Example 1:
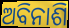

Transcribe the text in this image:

ଅବିନାଶି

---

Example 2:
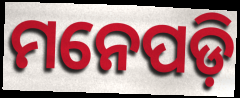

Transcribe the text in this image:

ମନେପଡ଼ି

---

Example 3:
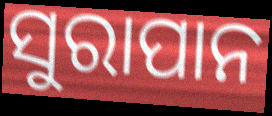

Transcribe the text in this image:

ସୁରାପାନ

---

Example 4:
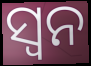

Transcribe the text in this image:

ସ୍ୱନ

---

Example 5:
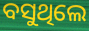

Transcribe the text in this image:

ବସୁଥିଲେ